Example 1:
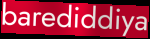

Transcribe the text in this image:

barediddiya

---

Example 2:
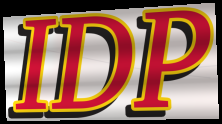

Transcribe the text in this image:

IDP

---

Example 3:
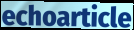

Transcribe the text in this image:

echoarticle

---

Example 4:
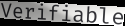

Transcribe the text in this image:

Verifiable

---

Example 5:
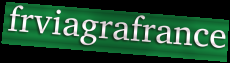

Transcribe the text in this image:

frviagrafrance